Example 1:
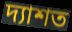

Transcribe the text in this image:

দ্যাশত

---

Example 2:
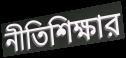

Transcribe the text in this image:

নীতিশিক্ষার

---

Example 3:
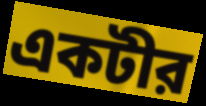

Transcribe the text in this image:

একটীর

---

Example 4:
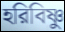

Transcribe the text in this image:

হরিবিষ্ণু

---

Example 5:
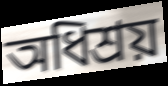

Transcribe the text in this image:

অধিশ্রয়